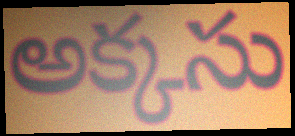
అక్కసు